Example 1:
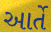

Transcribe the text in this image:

આર્તે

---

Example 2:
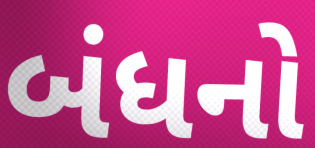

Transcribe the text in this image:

બંધનો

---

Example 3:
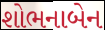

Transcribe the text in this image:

શોભનાબેન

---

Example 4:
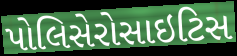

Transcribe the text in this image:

પોલિસેરોસાઇટિસ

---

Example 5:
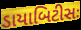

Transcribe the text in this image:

ડાયાબિટીસઃ